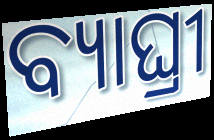
ବ୍ୟାଘ୍ରୀ